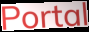
Portal